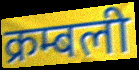
क्रम्बली